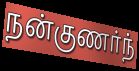
நன்குணர்ந்